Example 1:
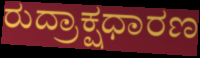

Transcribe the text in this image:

ರುದ್ರಾಕ್ಷಧಾರಣ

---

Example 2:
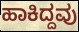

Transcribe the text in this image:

ಹಾಕಿದ್ದವು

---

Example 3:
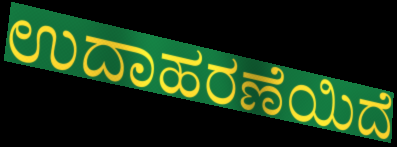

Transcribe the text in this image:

ಉದಾಹರಣೆಯಿದೆ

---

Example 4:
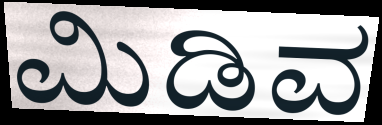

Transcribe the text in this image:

ಮಿಡಿವ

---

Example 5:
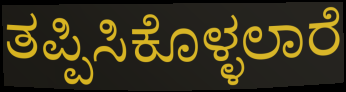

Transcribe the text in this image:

ತಪ್ಪಿಸಿಕೊಳ್ಳಲಾರೆ